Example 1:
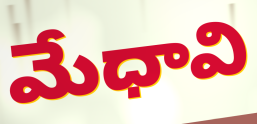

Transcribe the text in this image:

మేధావి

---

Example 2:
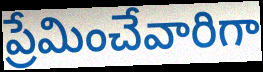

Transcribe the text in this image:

ప్రేమించేవారిగా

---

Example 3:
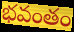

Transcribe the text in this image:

భవంతం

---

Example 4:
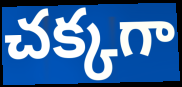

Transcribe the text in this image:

చక్కగా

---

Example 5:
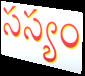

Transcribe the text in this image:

సస్యం